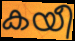
കയീ